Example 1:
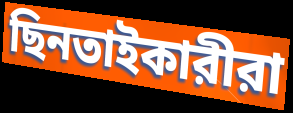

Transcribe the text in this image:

ছিনতাইকারীরা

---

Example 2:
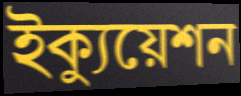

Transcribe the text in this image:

ইক্যুয়েশন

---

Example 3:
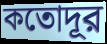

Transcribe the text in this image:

কতোদূর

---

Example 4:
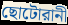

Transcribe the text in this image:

ছোটোরানী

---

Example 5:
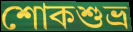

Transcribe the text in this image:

শোকশুভ্র